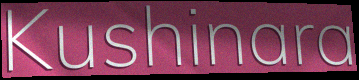
Kushinara